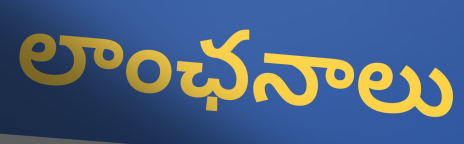
లాంఛనాలు